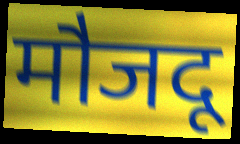
मौजदू